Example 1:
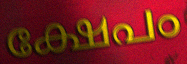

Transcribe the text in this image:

ക്ഷേപം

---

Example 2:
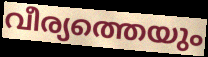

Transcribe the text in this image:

വീര്യത്തെയും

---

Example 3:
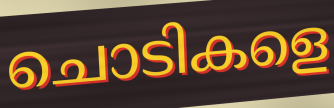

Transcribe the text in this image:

ചൊടികളെ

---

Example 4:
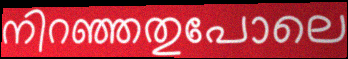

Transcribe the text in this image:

നിറഞ്ഞതുപോലെ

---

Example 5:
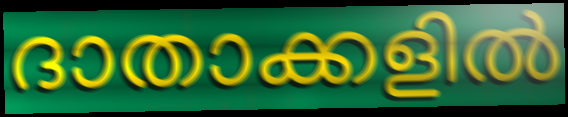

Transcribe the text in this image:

ദാതാക്കളിൽ